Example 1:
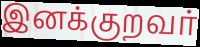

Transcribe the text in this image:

இனக்குறவர்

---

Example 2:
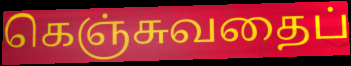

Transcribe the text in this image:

கெஞ்சுவதைப்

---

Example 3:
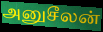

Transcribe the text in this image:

அனுசீலன்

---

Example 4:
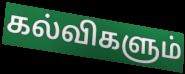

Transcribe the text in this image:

கல்விகளும்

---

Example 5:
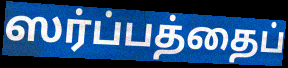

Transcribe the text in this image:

ஸர்ப்பத்தைப்